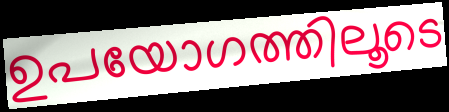
ഉപയോഗത്തിലൂടെ